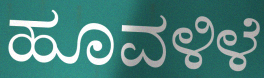
ಹೂವಳಿಳೆ